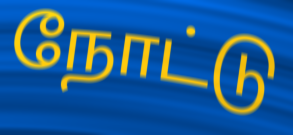
நோட்டு